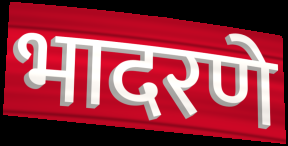
भादरणे